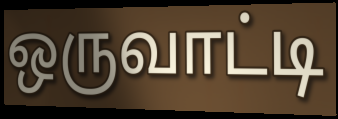
ஒருவாட்டி